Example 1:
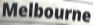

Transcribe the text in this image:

Melbourne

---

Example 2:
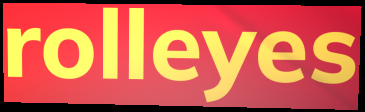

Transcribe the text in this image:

rolleyes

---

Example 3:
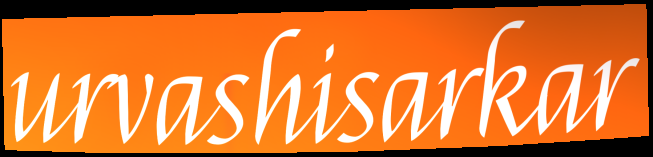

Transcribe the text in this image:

urvashisarkar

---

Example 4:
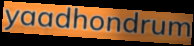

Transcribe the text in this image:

yaadhondrum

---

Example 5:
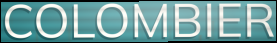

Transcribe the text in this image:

COLOMBIER